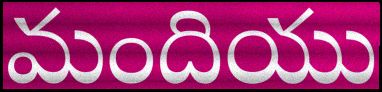
మందియు